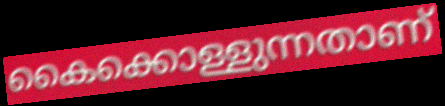
കൈക്കൊള്ളുന്നതാണ്